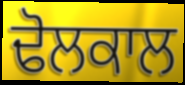
ਢੋਲਕਾਲ